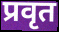
प्रवृत